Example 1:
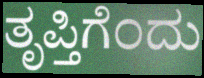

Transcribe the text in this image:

ತೃಪ್ತಿಗೆಂದು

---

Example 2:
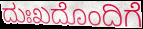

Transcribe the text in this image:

ದುಃಖದೊಂದಿಗೆ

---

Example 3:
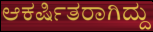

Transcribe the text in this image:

ಆಕರ್ಷಿತರಾಗಿದ್ದು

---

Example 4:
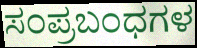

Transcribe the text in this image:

ಸಂಪ್ರಬಂಧಗಳ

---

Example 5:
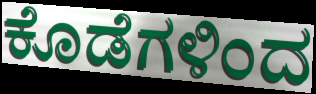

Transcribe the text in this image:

ಕೊಡೆಗಳಿಂದ